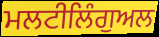
ਮਲਟੀਲਿੰਗੁਅਲ